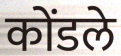
कोंडले